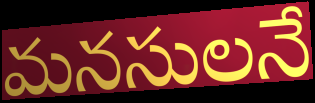
మనసులనే